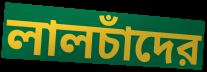
লালচাঁদের